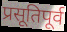
प्रसूतिपूर्व